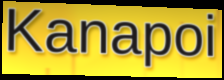
Kanapoi